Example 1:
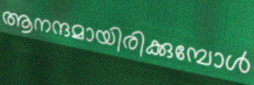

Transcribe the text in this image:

ആനന്ദമായിരിക്കുമ്പോൾ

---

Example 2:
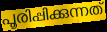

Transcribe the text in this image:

പൂരിപ്പിക്കുന്നത്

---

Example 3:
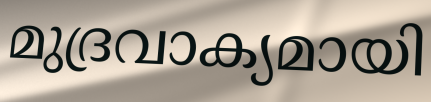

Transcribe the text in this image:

മുദ്രവാക്യമായി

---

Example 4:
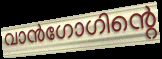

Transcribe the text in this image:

വാൻഗോഗിന്റെ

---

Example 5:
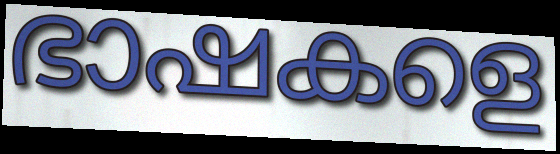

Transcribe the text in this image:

ഭാഷകളെ